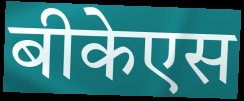
बीकेएस